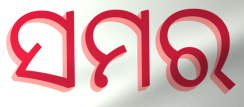
ସମର